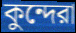
কুন্দেরা